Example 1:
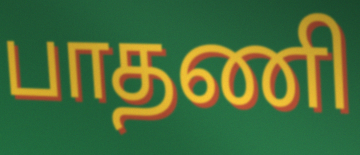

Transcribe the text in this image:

பாதணி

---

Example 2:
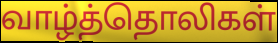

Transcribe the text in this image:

வாழ்த்தொலிகள்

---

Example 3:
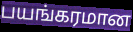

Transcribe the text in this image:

பயங்கரமான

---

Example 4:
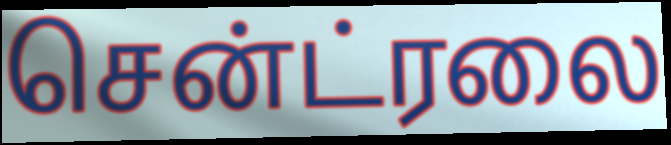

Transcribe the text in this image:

சென்ட்ரலை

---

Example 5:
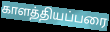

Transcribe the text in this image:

காளத்தியப்பரை